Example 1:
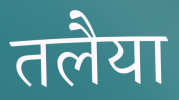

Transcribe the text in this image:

तलैया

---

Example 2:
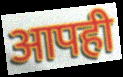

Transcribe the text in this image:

आपही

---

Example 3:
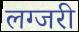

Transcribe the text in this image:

लग्जरी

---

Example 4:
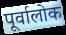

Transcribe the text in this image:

पूर्वालोक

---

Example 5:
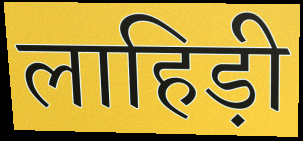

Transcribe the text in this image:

लाहिड़ी